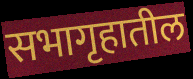
सभागृहातील